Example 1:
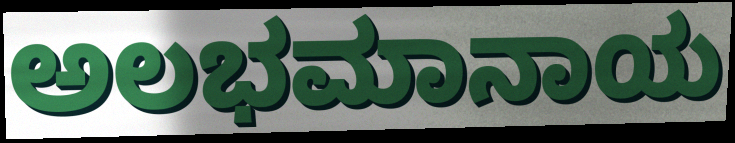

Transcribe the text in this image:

ಅಲಭಮಾನಾಯ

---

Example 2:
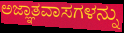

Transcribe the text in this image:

ಅಜ್ಞಾತವಾಸಗಳನ್ನು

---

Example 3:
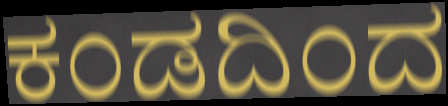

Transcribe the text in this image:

ಕಂಡದಿಂದ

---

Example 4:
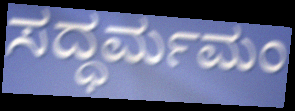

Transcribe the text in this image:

ಸದ್ಧರ್ಮಮಂ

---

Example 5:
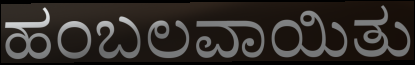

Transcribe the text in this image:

ಹಂಬಲವಾಯಿತು